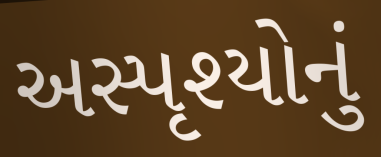
અસ્પૃશ્યોનું